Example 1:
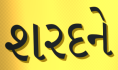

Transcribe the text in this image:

શરદને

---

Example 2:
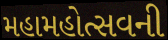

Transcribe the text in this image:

મહામહોત્સવની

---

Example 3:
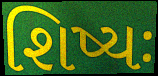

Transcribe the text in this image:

શિષ્યઃ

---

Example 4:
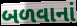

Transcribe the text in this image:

બળવાનાં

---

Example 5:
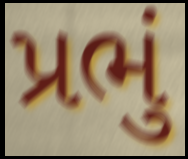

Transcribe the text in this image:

પ્રભું